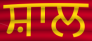
ਸ਼ਾਲ